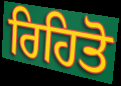
ਰਿਹਿਤੋ